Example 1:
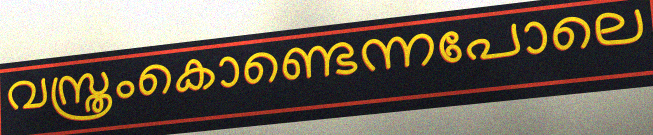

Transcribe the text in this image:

വസ്ത്രംകൊണ്ടെന്നപോലെ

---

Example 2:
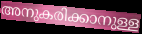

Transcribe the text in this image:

അനുകരിക്കാനുള്ള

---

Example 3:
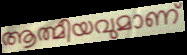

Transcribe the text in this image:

ആത്മീയവുമാണ്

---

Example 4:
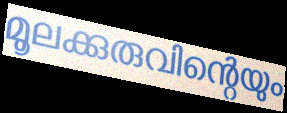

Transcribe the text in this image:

മൂലക്കുരുവിന്റെയും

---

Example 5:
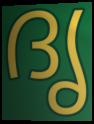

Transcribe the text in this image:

ദൃ